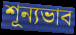
শূন্যভাব